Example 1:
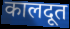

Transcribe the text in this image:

कालदूत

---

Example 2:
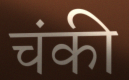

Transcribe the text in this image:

चंकी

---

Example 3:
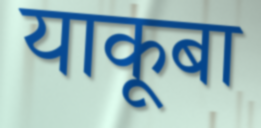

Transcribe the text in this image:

याकूबा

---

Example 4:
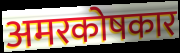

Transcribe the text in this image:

अमरकोषकार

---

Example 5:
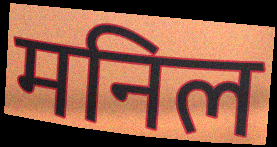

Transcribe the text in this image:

मनिल